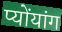
प्योंयांग